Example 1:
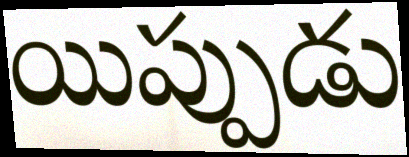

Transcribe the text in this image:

యిప్పుడు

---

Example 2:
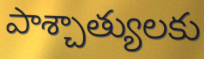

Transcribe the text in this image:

పాశ్చాత్యులకు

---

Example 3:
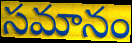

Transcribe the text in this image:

సమానం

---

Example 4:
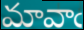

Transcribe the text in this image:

మావాఁ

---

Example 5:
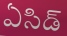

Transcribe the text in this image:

ఏసిడ్